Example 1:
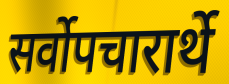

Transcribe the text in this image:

सर्वोपचारार्थे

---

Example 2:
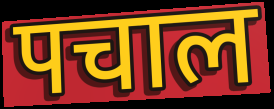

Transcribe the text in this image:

पचाल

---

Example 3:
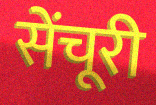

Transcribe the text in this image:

सेंचूरी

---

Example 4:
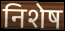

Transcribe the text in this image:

निशेष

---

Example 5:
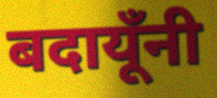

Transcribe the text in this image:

बदायूँनी